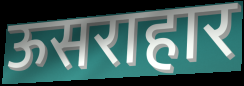
ऊसराहार